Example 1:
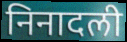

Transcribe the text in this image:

निनादली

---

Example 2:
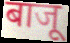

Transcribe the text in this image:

बाजू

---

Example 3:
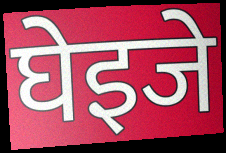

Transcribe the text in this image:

घेइजे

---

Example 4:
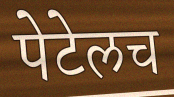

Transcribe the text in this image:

पेटेलच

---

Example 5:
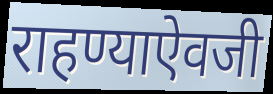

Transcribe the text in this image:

राहण्याऐवजी